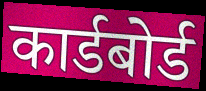
कार्डबोर्ड